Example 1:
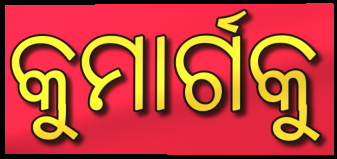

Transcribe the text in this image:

କୁମାର୍ଗକୁ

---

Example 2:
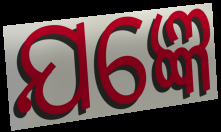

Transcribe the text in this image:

ଯଜ୍ଞେ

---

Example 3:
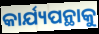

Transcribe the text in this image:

କାର୍ଯ୍ୟପନ୍ଥାକୁ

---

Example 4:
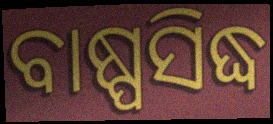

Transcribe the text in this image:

ବାଷ୍ପସିଦ୍ଧ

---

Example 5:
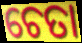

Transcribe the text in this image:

ଚେତା